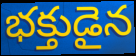
భక్తుడైన